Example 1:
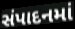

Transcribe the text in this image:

સંપાદનમાં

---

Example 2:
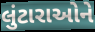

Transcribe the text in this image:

લુંટારાઓને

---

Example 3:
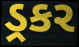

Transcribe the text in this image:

ડ્રકર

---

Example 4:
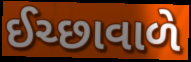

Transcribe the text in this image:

ઈચ્છાવાળે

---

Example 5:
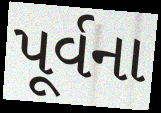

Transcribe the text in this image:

પૂર્વના